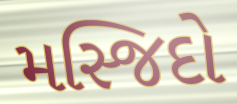
મસ્જિદો